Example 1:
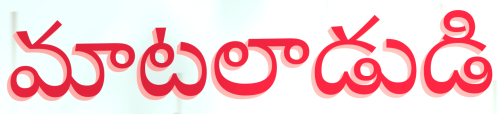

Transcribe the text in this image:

మాటలాడుడి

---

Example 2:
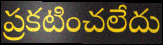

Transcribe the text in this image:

ప్రకటించలేదు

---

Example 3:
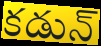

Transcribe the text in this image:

కడున్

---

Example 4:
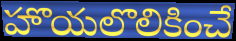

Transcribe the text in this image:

హొయలొలికించే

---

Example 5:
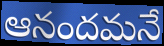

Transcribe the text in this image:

ఆనందమనే